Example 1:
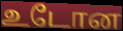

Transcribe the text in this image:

உடோன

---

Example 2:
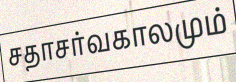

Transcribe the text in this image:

சதாசர்வகாலமும்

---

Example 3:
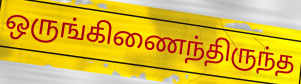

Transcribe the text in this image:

ஒருங்கிணைந்திருந்த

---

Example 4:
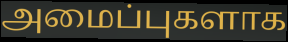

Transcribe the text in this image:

அமைப்புகளாக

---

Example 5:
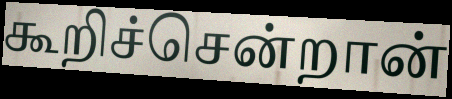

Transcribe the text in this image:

கூறிச்சென்றான்